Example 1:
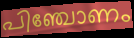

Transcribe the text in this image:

പിഞ്ചോണം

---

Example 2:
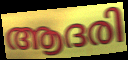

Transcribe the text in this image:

ആദരി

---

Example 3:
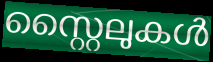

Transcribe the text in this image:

സ്റ്റൈലുകൾ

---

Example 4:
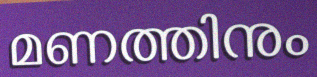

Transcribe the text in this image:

മണത്തിനും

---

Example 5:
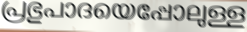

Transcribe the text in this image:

പ്രഭുപാദയെപ്പോലുള്ള